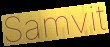
Samvit